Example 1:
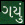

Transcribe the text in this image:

ગયું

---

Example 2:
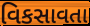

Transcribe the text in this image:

વિકસાવતા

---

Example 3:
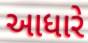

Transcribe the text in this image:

આધારે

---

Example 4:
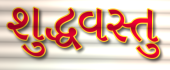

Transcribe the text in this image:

શુદ્ધવસ્તુ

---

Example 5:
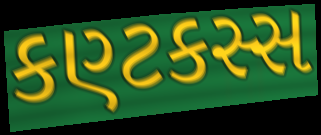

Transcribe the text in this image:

કણ્ટકસ્સ